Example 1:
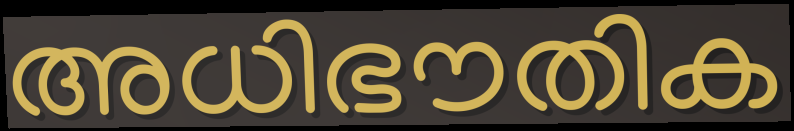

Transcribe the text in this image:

അധിഭൗതിക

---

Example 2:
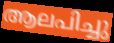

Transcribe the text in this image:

ആലപിച്ചു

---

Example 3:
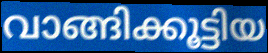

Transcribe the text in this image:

വാങ്ങിക്കൂട്ടിയ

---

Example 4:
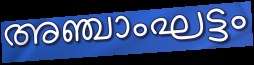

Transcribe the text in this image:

അഞ്ചാംഘട്ടം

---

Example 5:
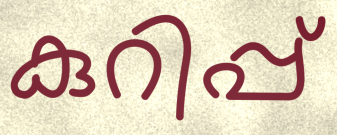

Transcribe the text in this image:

കുറിപ്പ്